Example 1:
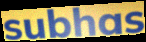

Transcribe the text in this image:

subhas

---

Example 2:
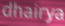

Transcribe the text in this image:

dhairya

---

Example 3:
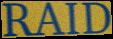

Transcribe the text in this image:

RAID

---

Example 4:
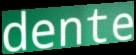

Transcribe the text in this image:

dente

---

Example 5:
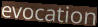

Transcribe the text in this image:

evocation